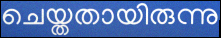
ചെയ്തതായിരുന്നു